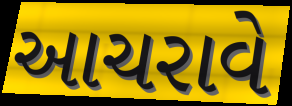
આચરાવે